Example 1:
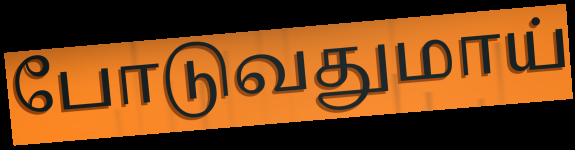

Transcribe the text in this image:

போடுவதுமாய்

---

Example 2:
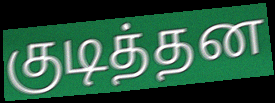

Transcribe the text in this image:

குடித்தன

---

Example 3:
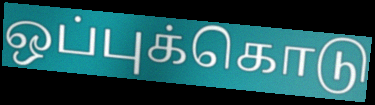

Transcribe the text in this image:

ஒப்புக்கொடு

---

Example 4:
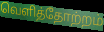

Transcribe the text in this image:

வெளித்தோற்றம்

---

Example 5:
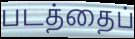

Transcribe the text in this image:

படத்தைப்